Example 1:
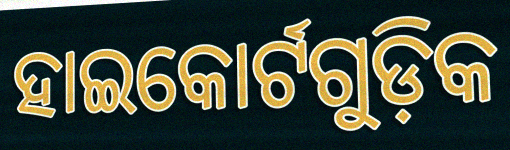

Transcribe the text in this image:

ହାଇକୋର୍ଟଗୁଡ଼ିକ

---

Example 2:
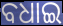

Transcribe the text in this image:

ବଧାଇ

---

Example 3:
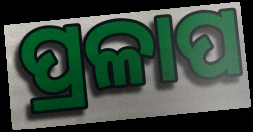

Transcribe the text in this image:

ପ୍ରଳାପ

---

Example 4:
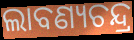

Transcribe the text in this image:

ଲାବଣ୍ୟଚନ୍ଦ୍ର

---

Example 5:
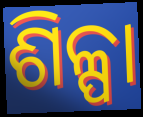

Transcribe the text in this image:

ଶିଳ୍ପା